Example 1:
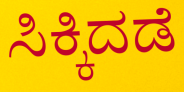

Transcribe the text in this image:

ಸಿಕ್ಕಿದಡೆ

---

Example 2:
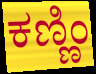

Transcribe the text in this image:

ಕಣ್ಣಿಂ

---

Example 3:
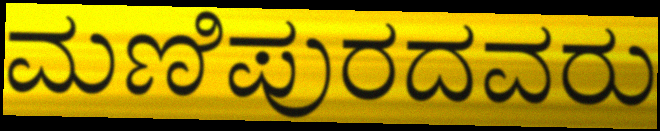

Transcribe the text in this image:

ಮಣಿಪುರದವರು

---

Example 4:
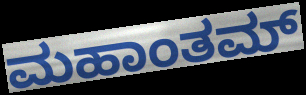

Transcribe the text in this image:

ಮಹಾಂತಮ್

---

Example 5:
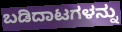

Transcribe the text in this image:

ಬಡಿದಾಟಗಳನ್ನು